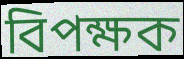
বিপক্ষক